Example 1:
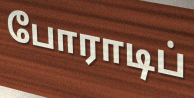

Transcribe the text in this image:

போராடிப்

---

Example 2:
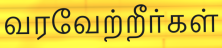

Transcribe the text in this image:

வரவேற்றீர்கள்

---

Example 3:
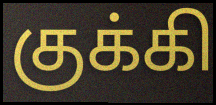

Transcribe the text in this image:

குக்கி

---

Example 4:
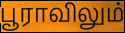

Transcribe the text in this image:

பூராவிலும்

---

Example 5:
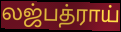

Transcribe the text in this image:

லஜ்பத்ராய்